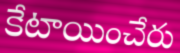
కేటాయించేరు